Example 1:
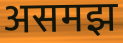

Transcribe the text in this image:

असमझ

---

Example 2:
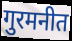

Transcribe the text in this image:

गुरमनीत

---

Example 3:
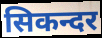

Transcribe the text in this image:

सिकन्दर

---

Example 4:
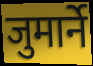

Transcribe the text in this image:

जुमार्ने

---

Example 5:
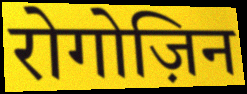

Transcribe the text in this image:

रोगोज़िन